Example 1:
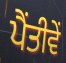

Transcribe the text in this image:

ਪੈਂਤੀਵੇਂ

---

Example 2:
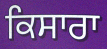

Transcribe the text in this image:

ਕਿਸਾਰਾ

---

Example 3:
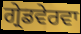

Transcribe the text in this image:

ਗ੍ਰੇਡਵੇਰਵਾ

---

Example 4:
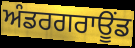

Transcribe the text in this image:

ਅੰਡਰਗਰਾਊੰਡ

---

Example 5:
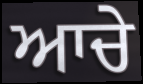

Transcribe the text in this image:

ਆਚੇ